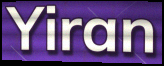
Yiran